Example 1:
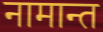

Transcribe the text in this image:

नामान्त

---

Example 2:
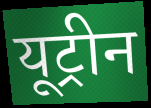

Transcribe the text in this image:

यूट्रीन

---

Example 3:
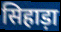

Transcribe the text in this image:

सिहाड़ा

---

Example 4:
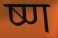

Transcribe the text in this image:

ष्ण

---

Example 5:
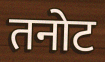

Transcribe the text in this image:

तनोट